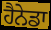
ਹੈਨੇਡਾ